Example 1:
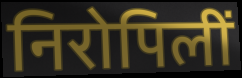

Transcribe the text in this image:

निरोपिलीं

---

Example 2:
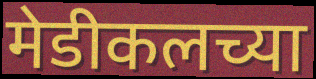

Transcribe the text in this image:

मेडीकलच्या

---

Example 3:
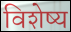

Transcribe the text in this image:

विशेष्य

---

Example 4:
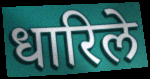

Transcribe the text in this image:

धारिले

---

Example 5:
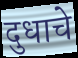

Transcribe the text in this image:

दुधाचे